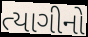
ત્યાગીનો